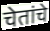
चेतांचे